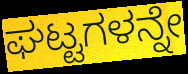
ಘಟ್ಟಗಳನ್ನೇ